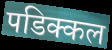
पडिक्कल